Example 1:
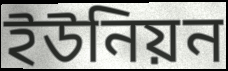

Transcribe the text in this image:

ইউনিয়ন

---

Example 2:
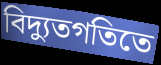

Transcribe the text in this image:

বিদ্যুতগতিতে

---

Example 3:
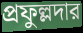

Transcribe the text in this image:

প্রফুল্লদার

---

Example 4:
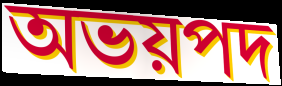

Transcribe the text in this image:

অভয়পদ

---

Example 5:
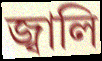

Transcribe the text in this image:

জ্বালি